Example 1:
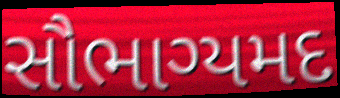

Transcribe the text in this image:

સૌભાગ્યમદ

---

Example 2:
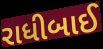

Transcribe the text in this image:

રાધીબાઈ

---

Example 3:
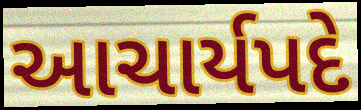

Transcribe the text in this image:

આચાર્યપદે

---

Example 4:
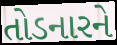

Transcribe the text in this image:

તોડનારને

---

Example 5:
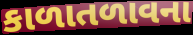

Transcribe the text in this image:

કાળાતળાવના